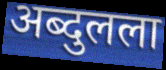
अब्दुलला